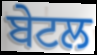
ਬੇਟਲ